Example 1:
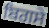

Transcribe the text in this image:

ਬਿਗਸੇ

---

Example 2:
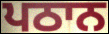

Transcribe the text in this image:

ਪਠਾਨ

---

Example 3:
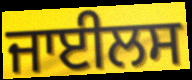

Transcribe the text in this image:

ਜਾਈਲਸ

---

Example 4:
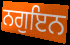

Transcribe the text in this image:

ਨਗੁਇਨ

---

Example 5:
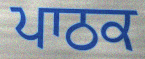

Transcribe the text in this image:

ਪਾਠਕ